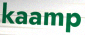
kaamp